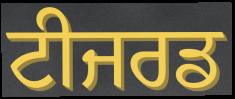
ਟੀਜਰਡ